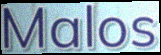
Malos